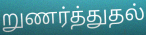
றுணர்த்துதல்